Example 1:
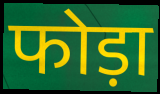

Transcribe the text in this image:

फोड़ा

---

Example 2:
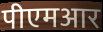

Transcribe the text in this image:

पीएमआर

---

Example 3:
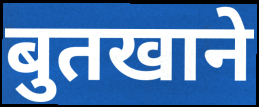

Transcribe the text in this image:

बुतखाने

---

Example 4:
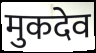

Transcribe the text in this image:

मुकदेव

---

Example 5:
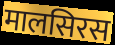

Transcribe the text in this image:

मालसिरस